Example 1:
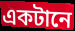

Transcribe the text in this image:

একটানে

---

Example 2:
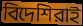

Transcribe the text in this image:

বিদেশিরাই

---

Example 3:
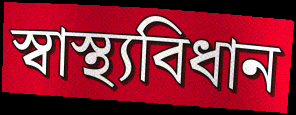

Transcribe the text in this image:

স্বাস্থ্যবিধান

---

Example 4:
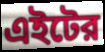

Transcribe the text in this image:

এইটের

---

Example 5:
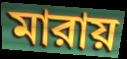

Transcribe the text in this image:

মারায়